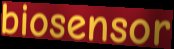
biosensor